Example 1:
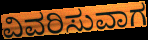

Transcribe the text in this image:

ವಿವರಿಸುವಾಗ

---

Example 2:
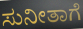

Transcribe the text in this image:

ಸುನೀತಾಗೆ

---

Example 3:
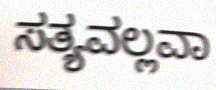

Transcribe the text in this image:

ಸತ್ಯವಲ್ಲವಾ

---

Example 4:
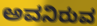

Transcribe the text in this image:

ಅವನಿರುವ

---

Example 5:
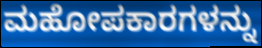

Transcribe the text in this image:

ಮಹೋಪಕಾರಗಳನ್ನು